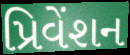
પ્રિવેંશન